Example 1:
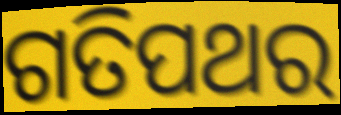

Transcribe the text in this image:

ଗତିପଥର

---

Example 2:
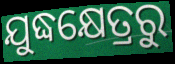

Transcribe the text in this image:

ଯୁଦ୍ଧକ୍ଷେତ୍ରରୁ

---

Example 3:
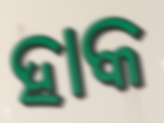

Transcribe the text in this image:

ହାକ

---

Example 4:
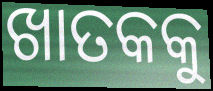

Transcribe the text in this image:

ଖାତକକୁ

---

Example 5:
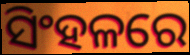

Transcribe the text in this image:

ସିଂହଳରେ